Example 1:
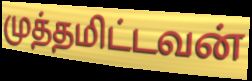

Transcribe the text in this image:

முத்தமிட்டவன்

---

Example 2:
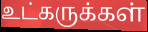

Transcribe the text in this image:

உட்கருக்கள்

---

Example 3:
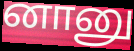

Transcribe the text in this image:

னானு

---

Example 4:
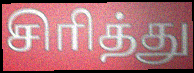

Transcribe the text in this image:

சிரித்து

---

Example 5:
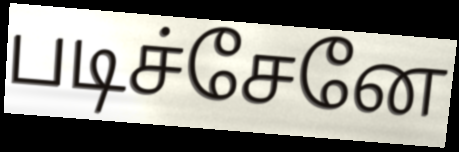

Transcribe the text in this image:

படிச்சேனே